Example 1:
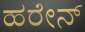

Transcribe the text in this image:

ಹರೇನ್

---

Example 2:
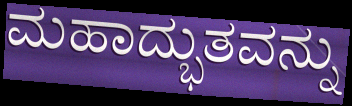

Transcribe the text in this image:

ಮಹಾದ್ಭುತವನ್ನು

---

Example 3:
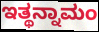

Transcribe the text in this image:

ಇತ್ಥನ್ನಾಮಂ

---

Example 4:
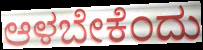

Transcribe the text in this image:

ಆಳಬೇಕೆಂದು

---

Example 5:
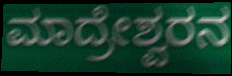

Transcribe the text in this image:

ಮಾದ್ರೇಶ್ವರನ